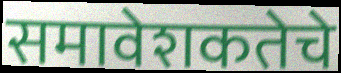
समावेशकतेचे